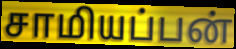
சாமியப்பன்